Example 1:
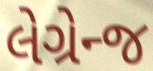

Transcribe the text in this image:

લેગ્રેન્જ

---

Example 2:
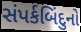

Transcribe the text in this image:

સંપર્કબિંદુનો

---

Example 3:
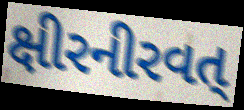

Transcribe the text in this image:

ક્ષીરનીરવત્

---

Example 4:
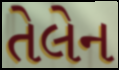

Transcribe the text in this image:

તેલેન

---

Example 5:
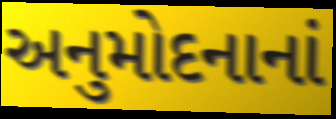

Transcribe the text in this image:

અનુમોદનાનાં